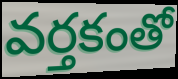
వర్తకంతో